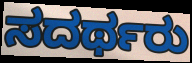
ಸದರ್ಥರು